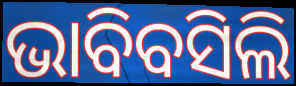
ଭାବିବସିଲି